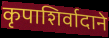
कृपाशिर्वादाने